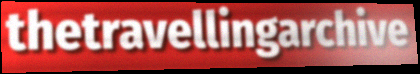
thetravellingarchive